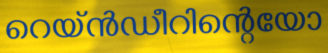
റെയ്ൻഡീറിന്റെയോ